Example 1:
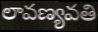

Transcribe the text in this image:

లావణ్యవతి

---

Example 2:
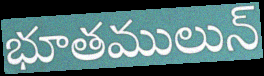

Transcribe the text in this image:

భూతములున్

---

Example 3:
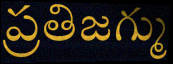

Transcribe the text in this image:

ప్రతిజగ్ము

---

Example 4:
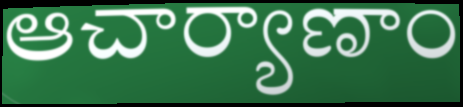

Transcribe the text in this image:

ఆచార్యాణాం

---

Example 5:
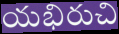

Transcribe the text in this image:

యభిరుచి